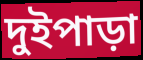
দুইপাড়া